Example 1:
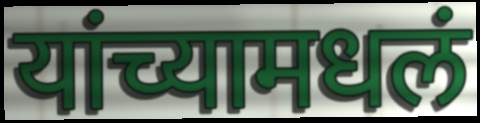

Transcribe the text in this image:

यांच्यामधलं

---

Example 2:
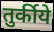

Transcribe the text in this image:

तुर्कीये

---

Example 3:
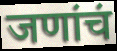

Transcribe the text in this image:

जणांचं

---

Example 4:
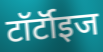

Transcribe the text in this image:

टॉर्टॉइज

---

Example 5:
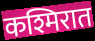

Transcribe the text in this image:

कश्मिरात